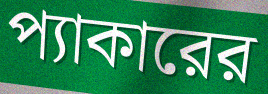
প্যাকারের